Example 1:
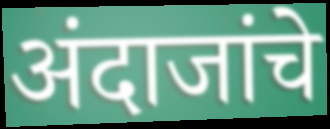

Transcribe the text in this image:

अंदाजांचे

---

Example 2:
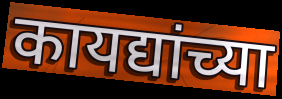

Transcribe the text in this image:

कायद्यांच्या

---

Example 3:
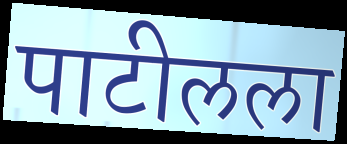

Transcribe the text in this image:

पाटीलला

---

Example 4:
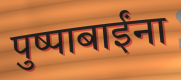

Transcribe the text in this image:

पुष्पाबाईंना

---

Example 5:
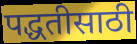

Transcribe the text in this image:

पद्धतीसाठी